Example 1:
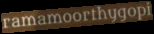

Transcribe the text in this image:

ramamoorthygopi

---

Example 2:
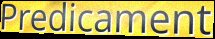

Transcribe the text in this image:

Predicament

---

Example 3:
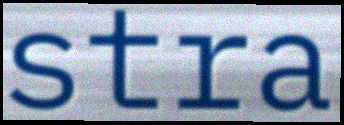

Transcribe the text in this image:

stra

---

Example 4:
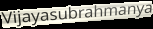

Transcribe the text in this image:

Vijayasubrahmanya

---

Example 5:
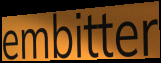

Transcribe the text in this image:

embitter